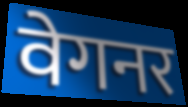
वेगनर